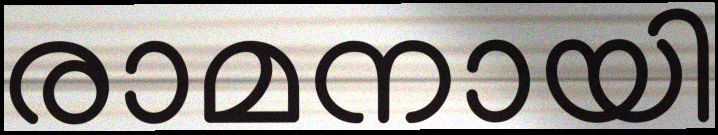
രാമനായി